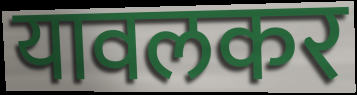
यावलकर